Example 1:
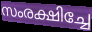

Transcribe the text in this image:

സംരക്ഷിച്ചേ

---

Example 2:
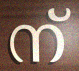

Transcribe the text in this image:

ന്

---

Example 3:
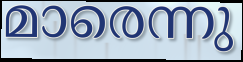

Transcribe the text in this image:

മാരെന്നു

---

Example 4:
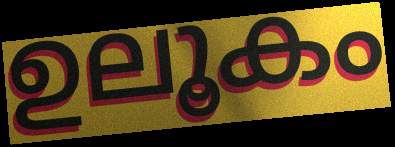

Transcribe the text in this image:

ഉലൂകം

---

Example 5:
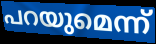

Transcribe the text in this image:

പറയുമെന്ന്